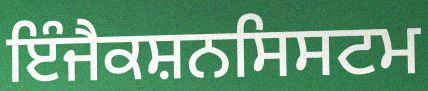
ਇੰਜੈਕਸ਼ਨਸਿਸਟਮ